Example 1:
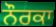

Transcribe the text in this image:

ਨੌਰਕਾ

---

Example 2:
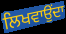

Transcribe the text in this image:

ਲਿਖਵਾਉਂਦਾ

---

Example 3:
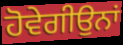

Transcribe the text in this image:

ਹੋਵੇਗੀਉਨਾਂ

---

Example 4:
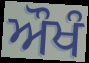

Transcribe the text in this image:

ਔਖੰ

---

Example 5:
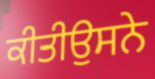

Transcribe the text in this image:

ਕੀਤੀਉਸਨੇ